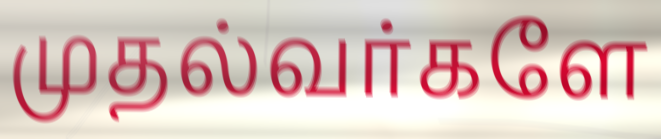
முதல்வர்களே